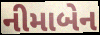
નીમાબેન